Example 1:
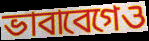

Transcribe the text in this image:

ভাবাবেগেও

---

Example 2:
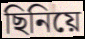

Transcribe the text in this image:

ছিনিয়ে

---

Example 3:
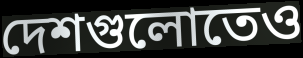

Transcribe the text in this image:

দেশগুলোতেও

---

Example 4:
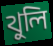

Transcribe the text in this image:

থুলি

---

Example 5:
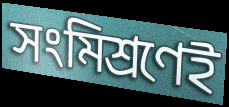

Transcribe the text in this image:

সংমিশ্রণেই